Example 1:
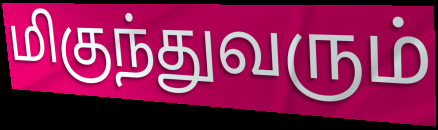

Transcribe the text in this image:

மிகுந்துவரும்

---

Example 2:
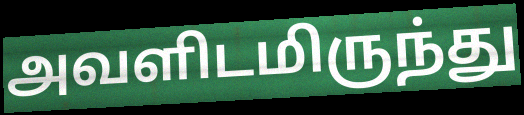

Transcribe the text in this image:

அவளிடமிருந்து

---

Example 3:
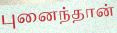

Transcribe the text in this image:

புனைந்தான்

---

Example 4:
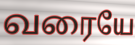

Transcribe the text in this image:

வரையே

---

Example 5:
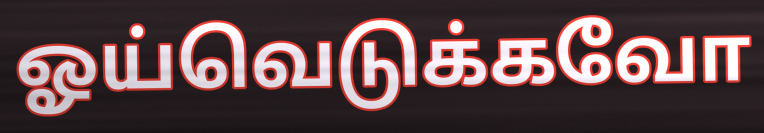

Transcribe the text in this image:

ஓய்வெடுக்கவோ